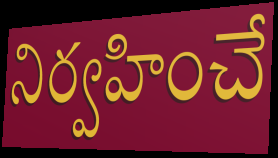
నిర్వహించే